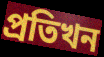
প্ৰতিখন